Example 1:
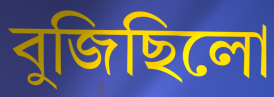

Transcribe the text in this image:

বুজিছিলো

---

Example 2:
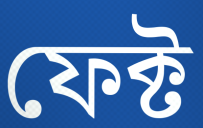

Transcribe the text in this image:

ফেক্ট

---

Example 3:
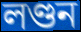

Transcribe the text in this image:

লণ্ডন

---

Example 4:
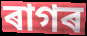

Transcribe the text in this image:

ৰাগৰ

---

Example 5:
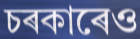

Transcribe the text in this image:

চৰকাৰেও